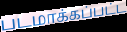
படமாக்கப்பட்ட